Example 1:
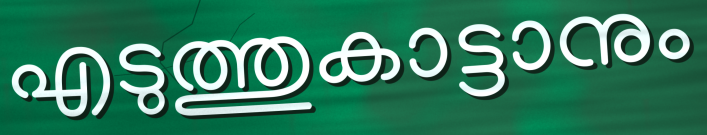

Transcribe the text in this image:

എടുത്തുകാട്ടാനും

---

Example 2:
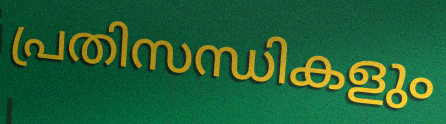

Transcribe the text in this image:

പ്രതിസന്ധികളും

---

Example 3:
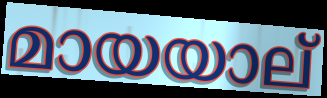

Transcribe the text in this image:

മായയാല്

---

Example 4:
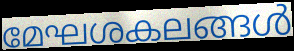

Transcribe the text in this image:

മേഘശകലങ്ങൾ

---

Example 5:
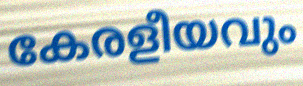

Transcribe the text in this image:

കേരളീയവും